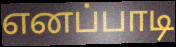
எனப்பாடி